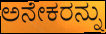
ಅನೇಕರನ್ನು